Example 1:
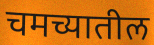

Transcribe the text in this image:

चमच्यातील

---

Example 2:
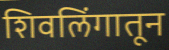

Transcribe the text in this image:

शिवलिंगातून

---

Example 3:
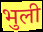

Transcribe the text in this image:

भुली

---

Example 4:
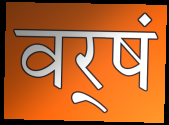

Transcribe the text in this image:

वर्षं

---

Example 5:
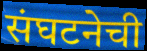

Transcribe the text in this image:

संघटनेची